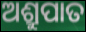
ଅଶ୍ରୁପାତ